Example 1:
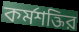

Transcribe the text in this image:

কর্মশক্তির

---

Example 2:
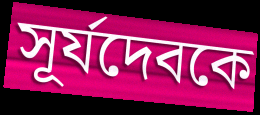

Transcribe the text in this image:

সূর্যদেবকে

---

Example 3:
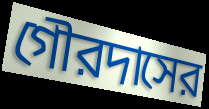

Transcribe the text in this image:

গৌরদাসের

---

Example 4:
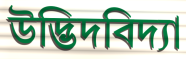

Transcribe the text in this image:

উদ্ভিদবিদ্যা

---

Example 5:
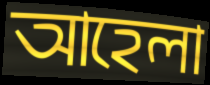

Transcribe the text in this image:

আহেলা